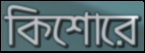
কিশোরে